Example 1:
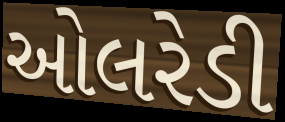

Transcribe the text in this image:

ઓલરેડી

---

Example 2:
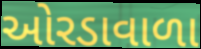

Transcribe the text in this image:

ઓરડાવાળા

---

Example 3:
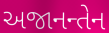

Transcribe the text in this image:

અજાનન્તેન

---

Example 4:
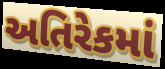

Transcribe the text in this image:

અતિરેકમાં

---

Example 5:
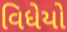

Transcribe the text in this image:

વિધેયો